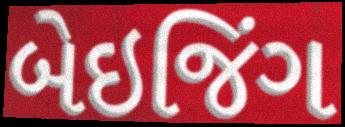
બેઇજિંગ